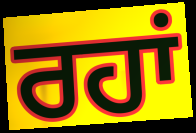
ਰਹਾਂ